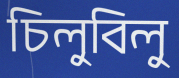
চিলুবিলু